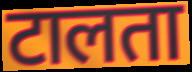
टालता